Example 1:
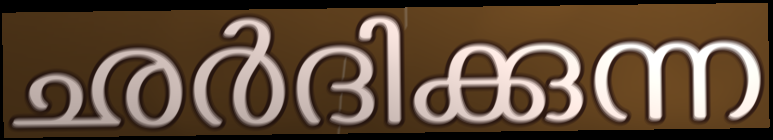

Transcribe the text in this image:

ഛർദിക്കുന്ന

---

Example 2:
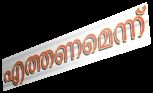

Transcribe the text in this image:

എത്തണമെന്ന്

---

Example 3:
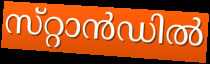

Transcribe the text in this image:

സ്‌റ്റാൻഡിൽ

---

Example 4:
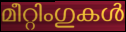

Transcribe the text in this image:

മീറ്റിംഗുകൾ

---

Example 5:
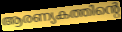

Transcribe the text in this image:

ആരണ്യകത്തിന്റെ